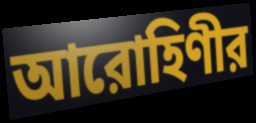
আরোহিণীর